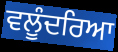
ਵਲੂੰਦਰਿਆ